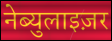
नेब्युलाइज़र